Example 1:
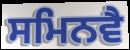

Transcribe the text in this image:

ਸਮਿਨਵੈ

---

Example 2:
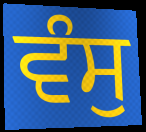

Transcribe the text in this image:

ਵੰਸੁ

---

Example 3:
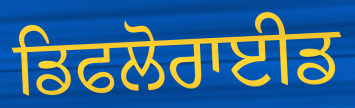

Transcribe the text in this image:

ਡਿਫਲੋਰਾਈਡ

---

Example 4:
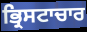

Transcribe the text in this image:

ਭ੍ਰਿਸਟਾਚਾਰ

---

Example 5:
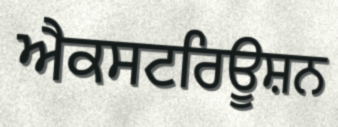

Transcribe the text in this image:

ਐਕਸਟਰਿਊਸ਼ਨ